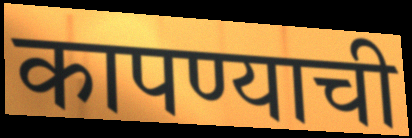
कापण्याची